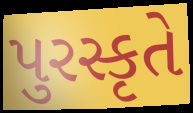
પુરસ્કૃતે